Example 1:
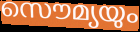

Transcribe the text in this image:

സൌമ്യയും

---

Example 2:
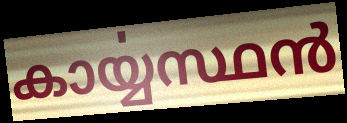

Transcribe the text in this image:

കാൎയ്യസ്ഥൻ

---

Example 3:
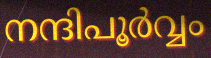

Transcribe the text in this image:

നന്ദിപൂർവ്വം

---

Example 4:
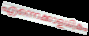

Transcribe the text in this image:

എന്നെക്കാളധികം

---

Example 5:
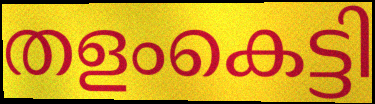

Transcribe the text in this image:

തളംകെട്ടി